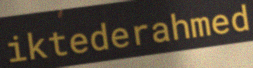
iktederahmed